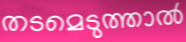
തടമെടുത്താൽ